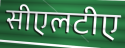
सीएलटीए